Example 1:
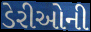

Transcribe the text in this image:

ડેરીઓની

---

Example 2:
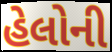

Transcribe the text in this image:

હેલોની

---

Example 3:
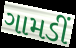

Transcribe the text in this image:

ગામડીં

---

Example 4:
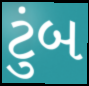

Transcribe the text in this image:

ટુંબ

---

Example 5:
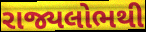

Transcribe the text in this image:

રાજ્યલોભથી